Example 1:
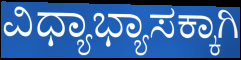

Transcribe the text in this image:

ವಿಧ್ಯಾಭ್ಯಾಸಕ್ಕಾಗಿ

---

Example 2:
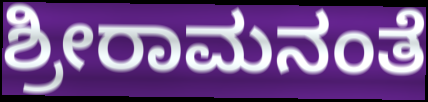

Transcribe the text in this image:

ಶ್ರೀರಾಮನಂತೆ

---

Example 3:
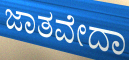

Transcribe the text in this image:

ಜಾತವೇದಾ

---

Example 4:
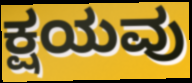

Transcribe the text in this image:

ಕ್ಷಯವು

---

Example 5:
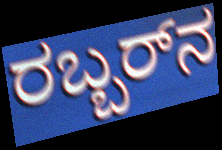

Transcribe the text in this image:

ರಬ್ಬರ್‌ನ